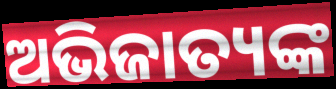
ଅଭିଜାତ୍ୟଙ୍କ